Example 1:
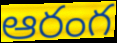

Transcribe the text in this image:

ఆరంగ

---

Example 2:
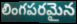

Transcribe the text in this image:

లింగపరమైన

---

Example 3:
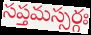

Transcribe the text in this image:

సప్తమస్సర్గః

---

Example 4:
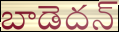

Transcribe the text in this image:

బాడెదన్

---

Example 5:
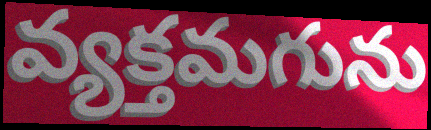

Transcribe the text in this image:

వ్యక్తమగును